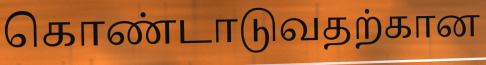
கொண்டாடுவதற்கான